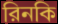
রিনকি